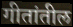
गीतांतील